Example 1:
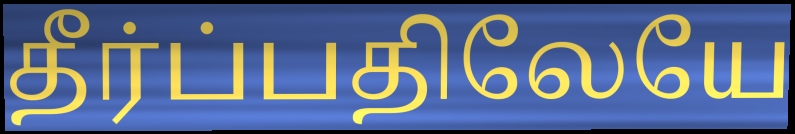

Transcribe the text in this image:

தீர்ப்பதிலேயே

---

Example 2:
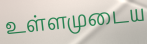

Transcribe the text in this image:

உள்ளமுடைய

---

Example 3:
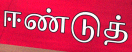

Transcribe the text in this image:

ஈண்டுத்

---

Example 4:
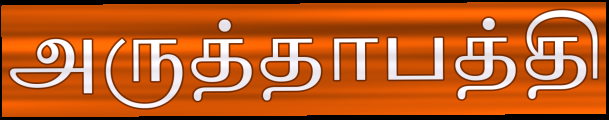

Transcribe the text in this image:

அருத்தாபத்தி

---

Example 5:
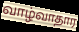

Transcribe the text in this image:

வாழ்வாதார